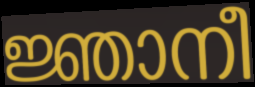
ജ്ഞാനീ